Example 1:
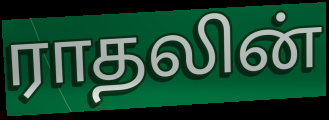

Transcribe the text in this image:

ராதலின்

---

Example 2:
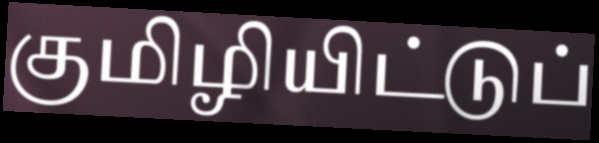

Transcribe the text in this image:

குமிழியிட்டுப்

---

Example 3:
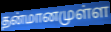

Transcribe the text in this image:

தன்மானமுள்ள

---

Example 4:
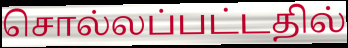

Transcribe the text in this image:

சொல்லப்பட்டதில்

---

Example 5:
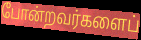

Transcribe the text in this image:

போன்றவர்களைப்